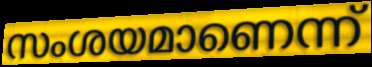
സംശയമാണെന്ന്